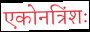
एकोनत्रिंशः